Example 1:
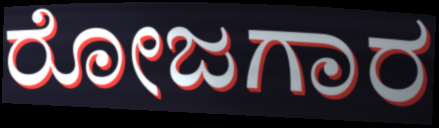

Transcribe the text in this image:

ರೋಜಗಾರ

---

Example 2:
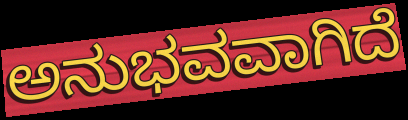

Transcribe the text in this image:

ಅನುಭವವಾಗಿದೆ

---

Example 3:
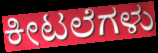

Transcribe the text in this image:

ಕೀಟಲೆಗಳು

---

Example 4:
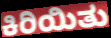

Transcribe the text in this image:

ಕಿರಿಯಿತು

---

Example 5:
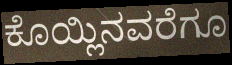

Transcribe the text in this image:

ಕೊಯ್ಲಿನವರೆಗೂ